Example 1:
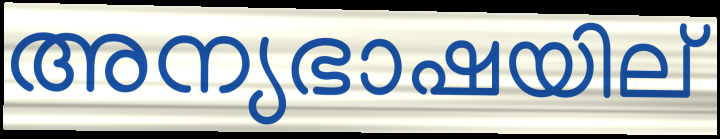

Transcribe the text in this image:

അന്യഭാഷയില്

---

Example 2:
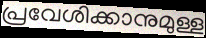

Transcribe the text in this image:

പ്രവേശിക്കാനുമുള്ള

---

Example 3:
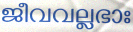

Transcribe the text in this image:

ജീവവല്ലഭാഃ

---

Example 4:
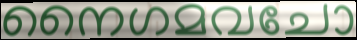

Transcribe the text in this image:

നൈഗമവചോ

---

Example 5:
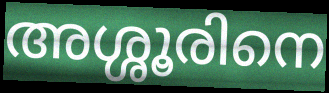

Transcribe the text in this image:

അശ്ശൂരിനെ